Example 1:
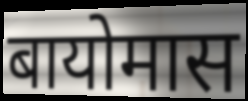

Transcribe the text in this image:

बायोमास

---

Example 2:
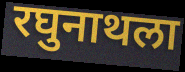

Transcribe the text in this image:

रघुनाथला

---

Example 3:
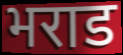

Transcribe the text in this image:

भराड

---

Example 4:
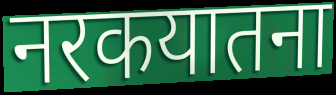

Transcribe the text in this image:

नरकयातना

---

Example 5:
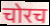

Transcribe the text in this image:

चोरच